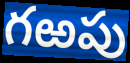
గఱపు